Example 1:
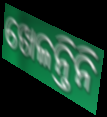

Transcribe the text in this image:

ଖେଳନ୍ତିନି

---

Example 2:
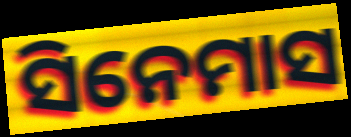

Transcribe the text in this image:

ସିନେମାସ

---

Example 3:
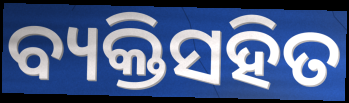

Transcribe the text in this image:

ବ୍ୟକ୍ତିସହିତ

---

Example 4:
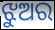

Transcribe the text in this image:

ଝୁଅର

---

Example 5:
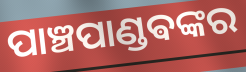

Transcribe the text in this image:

ପାଞ୍ଚପାଣ୍ଡଵଙ୍କର